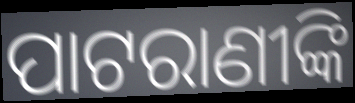
ପାଟରାଣୀଙ୍କି